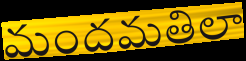
మందమతిలా